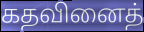
கதவினைத்